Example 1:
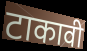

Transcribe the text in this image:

टाकावी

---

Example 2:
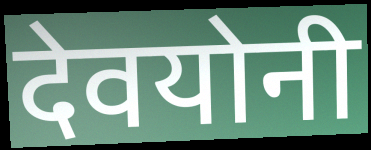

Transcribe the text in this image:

देवयोनी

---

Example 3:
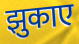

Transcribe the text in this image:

झुकाए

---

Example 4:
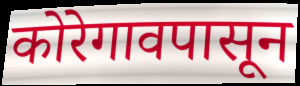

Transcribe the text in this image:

कोरेगावपासून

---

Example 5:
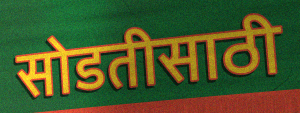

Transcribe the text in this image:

सोडतीसाठी